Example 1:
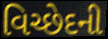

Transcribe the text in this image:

વિચ્છેદની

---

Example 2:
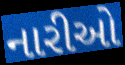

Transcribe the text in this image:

નારીઓ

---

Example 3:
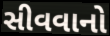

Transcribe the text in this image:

સીવવાનો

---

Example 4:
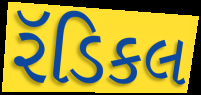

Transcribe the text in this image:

રૅડિકલ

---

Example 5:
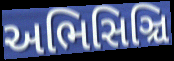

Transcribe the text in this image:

અભિસિઞ્ચિ